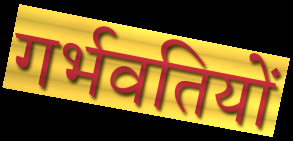
गर्भवतियों